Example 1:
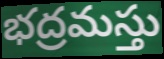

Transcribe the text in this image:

భద్రమస్తు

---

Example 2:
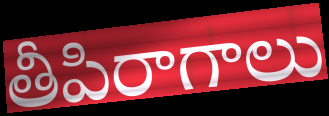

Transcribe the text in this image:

తీపిరాగాలు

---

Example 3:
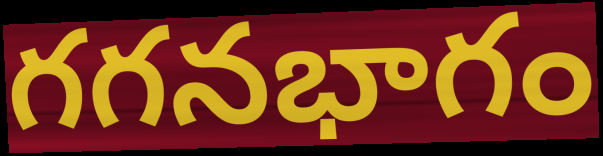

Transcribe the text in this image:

గగనభాగం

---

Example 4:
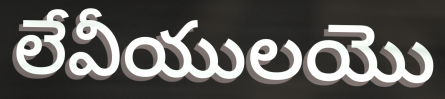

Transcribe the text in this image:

లేవీయులయొ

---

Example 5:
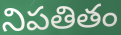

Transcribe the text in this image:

నిపతితం